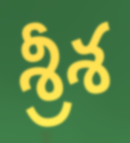
శ్రీశ